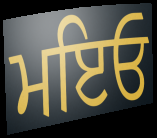
ਮਇਓ